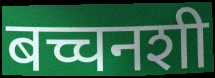
बच्चनशी